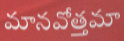
మానవోత్తమా